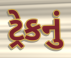
ટ્રેકનું